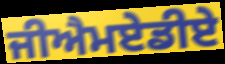
ਜੀਐਮਏਡੀਏ